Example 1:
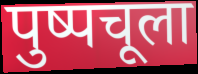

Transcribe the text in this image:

पुष्पचूला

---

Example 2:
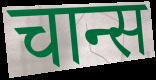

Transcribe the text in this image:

चान्स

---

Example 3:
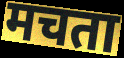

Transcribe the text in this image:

मचता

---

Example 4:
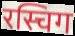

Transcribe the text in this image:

रस्चिग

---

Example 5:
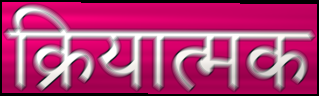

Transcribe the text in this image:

क्रियात्मक